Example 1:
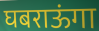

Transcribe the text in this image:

घबराऊंगा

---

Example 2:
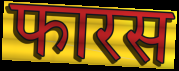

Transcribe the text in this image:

फारस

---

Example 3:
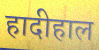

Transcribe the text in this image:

हादीहाल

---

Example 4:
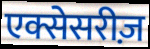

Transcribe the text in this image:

एक्सेसरीज़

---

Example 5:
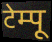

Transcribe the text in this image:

टेम्पू